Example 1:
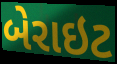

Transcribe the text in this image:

બેરાઇટ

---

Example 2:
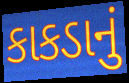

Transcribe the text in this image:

કાકડાનું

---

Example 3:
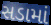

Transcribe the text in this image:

સડામાં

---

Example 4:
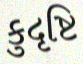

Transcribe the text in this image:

કુદૃષ્ટિ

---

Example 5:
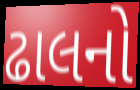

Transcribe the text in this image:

ઢાલનો